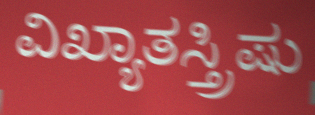
ವಿಖ್ಯಾತಸ್ತ್ರಿಷು